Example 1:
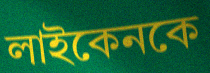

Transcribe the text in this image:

লাইকেনকে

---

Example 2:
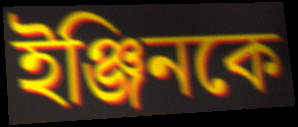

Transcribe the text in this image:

ইঞ্জিনকে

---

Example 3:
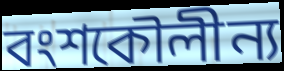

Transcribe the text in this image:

বংশকৌলীন্য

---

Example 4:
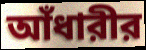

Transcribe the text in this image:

আঁধারীর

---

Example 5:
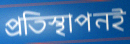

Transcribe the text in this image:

প্রতিস্থাপনই